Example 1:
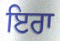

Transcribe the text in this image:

ਇਰਾ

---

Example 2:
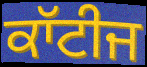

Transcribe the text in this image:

ਕਾੱਟੀਜ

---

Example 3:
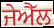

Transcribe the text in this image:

ਜੇਐੱਲ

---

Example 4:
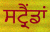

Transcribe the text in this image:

ਸਟ੍ਰੈਂਡਾਂ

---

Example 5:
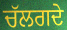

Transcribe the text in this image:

ਚੱਲਗਦੇ